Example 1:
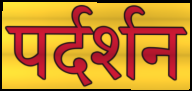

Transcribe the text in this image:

पर्दर्शन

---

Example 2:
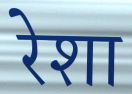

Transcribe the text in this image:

रेशा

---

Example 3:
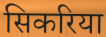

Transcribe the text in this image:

सिकरिया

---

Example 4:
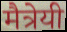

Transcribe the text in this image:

मैत्रेयी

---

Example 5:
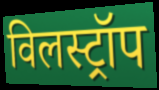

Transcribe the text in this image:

विलस्ट्रॉप